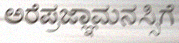
ಅರೆಪ್ರಜ್ಞಾಮನಸ್ಸಿಗೆ